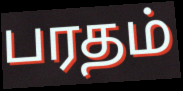
பரதம்